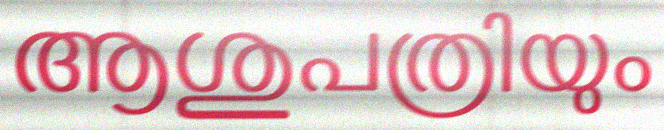
ആശുപത്രിയും